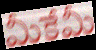
మీకేమీ